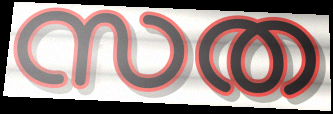
സത